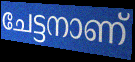
ചേട്ടനാണ്